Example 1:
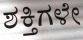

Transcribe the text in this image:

ಶಕ್ತಿಗಳೇ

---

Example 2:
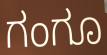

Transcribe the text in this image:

ಗಂಗೂ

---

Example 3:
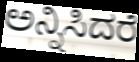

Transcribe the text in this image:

ಅನ್ನಿಸಿದರೆ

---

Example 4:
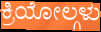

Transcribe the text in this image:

ಕ್ರಿಯೋಲ್ಗಳು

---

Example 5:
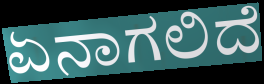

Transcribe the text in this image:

ಏನಾಗಲಿದೆ